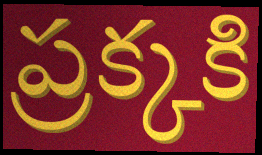
ప్రక్కకి